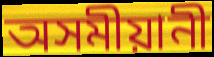
অসমীয়ানী